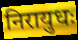
निरायुधः